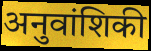
अनुवांशिकी